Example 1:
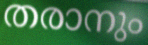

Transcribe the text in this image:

തരാനും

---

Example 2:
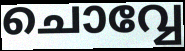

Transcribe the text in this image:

ചൊവ്വേ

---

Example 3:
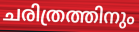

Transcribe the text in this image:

ചരിത്രത്തിനും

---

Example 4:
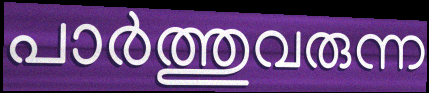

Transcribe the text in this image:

പാർത്തുവരുന്ന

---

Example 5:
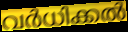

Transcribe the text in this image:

വർധിക്കൽ